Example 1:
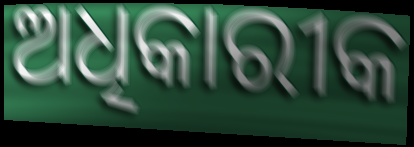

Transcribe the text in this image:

ଅଧିକାରୀକ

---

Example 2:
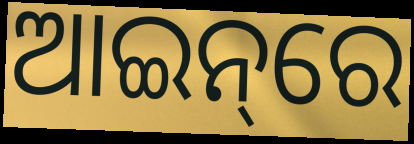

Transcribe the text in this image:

ଆଇନ୍‌ରେ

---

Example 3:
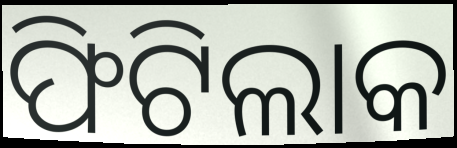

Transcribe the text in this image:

ଫିଟିଲାକ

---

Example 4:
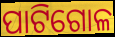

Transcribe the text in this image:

ପାଟିଗୋଳ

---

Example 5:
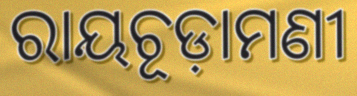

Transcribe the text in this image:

ରାୟଚୂଡ଼ାମଣୀ